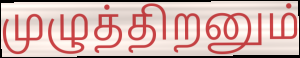
முழுத்திறனும்